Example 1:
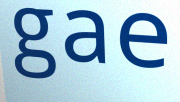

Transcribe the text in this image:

gae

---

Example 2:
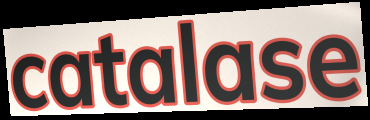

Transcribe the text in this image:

catalase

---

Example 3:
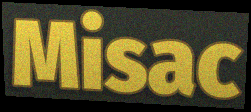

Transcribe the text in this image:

Misac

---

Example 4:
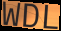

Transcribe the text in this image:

WDL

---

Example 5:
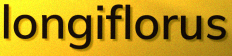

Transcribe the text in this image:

longiflorus